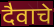
दैवाचे